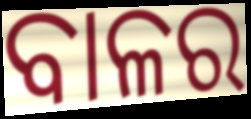
ବାଳର